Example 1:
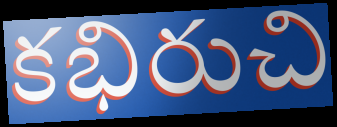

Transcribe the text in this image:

కభిరుచి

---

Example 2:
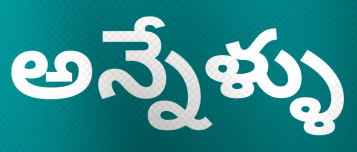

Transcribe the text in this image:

అన్నేళ్ళు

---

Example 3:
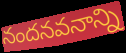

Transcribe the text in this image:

నందనవనాన్ని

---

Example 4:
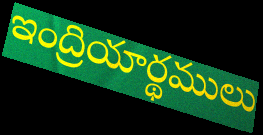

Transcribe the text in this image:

ఇంద్రియార్థములు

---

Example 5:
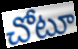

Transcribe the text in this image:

చోటూ